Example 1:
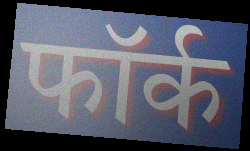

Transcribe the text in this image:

फॉर्क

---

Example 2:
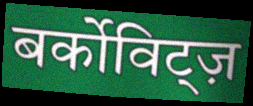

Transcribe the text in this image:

बर्कोविट्ज़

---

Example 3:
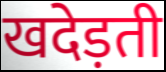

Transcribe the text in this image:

खदेड़ती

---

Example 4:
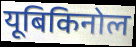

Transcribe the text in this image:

यूबिकिनोल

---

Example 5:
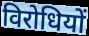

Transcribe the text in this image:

विरोधियों